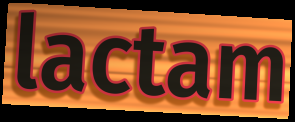
lactam